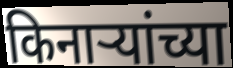
किनाऱ्यांच्या